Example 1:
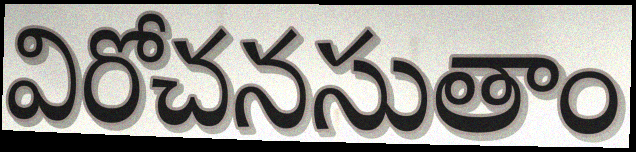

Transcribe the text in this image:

విరోచనసుతాం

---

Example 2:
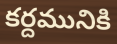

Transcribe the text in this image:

కర్దమునికి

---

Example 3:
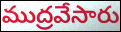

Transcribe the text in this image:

ముద్రవేసారు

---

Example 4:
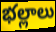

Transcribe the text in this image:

భల్లాలు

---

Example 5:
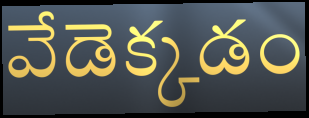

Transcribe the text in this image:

వేడెక్కడం